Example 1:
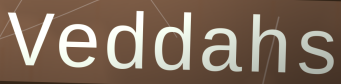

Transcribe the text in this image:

Veddahs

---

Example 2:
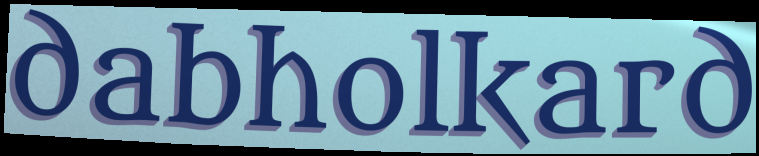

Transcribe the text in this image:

dabholkard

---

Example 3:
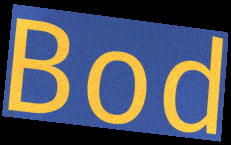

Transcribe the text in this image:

Bod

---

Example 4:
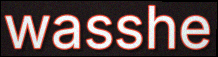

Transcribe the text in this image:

wasshe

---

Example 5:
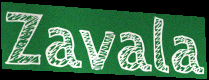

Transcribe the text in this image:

Zavala